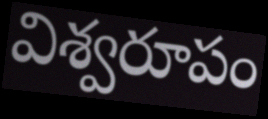
విశ్వరూపం